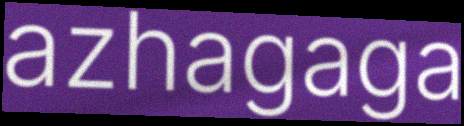
azhagaga